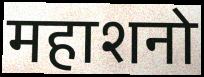
महाशनो